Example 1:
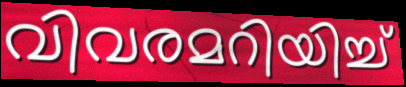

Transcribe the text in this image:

വിവരമറിയിച്ച്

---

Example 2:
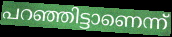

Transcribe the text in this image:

പറഞ്ഞിട്ടാണെന്ന്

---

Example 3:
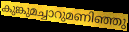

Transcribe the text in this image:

കുങ്കുമച്ചാറുമണിഞ്ഞു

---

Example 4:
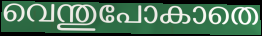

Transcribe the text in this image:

വെന്തുപോകാതെ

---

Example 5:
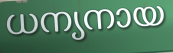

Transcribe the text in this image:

ധന്യനായ